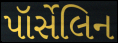
પૉર્સેલિન